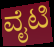
ವೈಟಿ